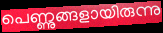
പെണ്ണുങ്ങളായിരുന്നു